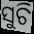
ସୁଚି